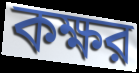
কক্ষর